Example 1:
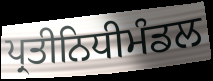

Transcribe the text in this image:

ਪ੍ਰਤੀਨਿਧੀਮੰਡਲ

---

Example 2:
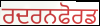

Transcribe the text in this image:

ਰਦਰਨਫੋਰਡ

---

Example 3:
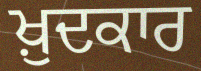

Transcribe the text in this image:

ਖ਼ੁਦਕਾਰ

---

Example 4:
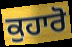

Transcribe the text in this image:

ਕੁਹਾਰੋ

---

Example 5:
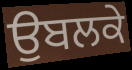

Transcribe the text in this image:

ਉਬਲਕੇ